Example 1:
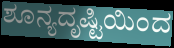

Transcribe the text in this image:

ಶೂನ್ಯದೃಷ್ಟಿಯಿಂದ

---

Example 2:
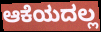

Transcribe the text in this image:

ಆಕೆಯದಲ್ಲ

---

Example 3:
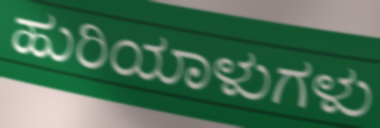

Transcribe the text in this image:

ಹುರಿಯಾಳುಗಳು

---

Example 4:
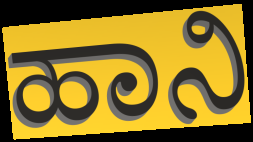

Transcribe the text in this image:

ಹಾನಿ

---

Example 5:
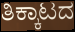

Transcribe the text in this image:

ತಿಕ್ಕಾಟದ